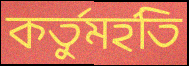
কর্তুমর্হতি